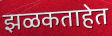
झळकताहेत